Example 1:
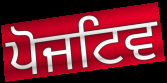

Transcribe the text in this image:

ਪੋਜਟਿਵ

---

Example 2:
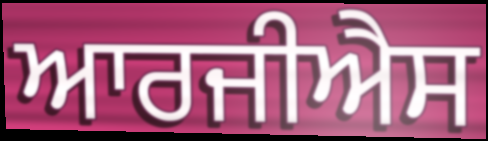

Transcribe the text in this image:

ਆਰਜੀਐਸ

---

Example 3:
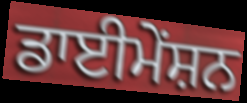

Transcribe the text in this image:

ਡਾਈਮੇਂਸ਼ਨ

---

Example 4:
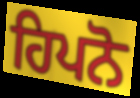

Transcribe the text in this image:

ਹਿਪਨੋ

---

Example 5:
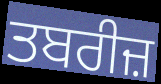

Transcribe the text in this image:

ਤਬਰੀਜ਼